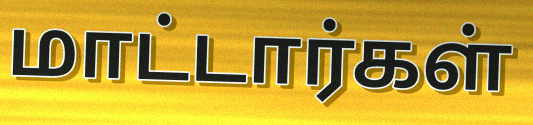
மாட்டார்கள்